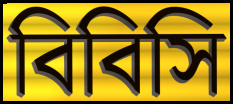
বিবিসি